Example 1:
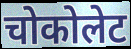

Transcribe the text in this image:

चोकोलेट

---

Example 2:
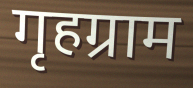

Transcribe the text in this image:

गृहग्राम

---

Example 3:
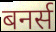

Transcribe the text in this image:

बनर्स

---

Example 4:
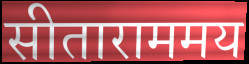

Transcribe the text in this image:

सीताराममय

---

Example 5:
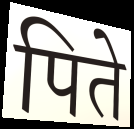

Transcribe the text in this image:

पिते